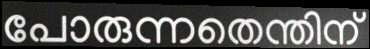
പോരുന്നതെന്തിന്